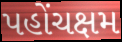
પહોંચક્ષમ